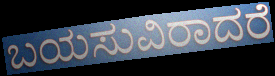
ಬಯಸುವಿರಾದರೆ